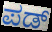
ಪಡ್